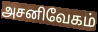
அசனிவேகம்